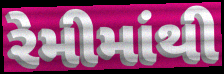
રેમીમાંથી